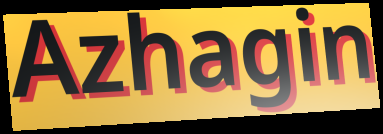
Azhagin